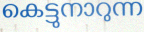
കെട്ടുനാറുന്ന